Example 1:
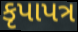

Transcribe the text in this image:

કૃપાપત્ર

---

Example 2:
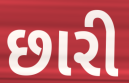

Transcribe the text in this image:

છારી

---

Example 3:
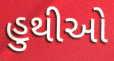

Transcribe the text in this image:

હુથીઓ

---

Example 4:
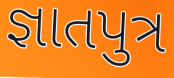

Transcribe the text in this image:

જ્ઞાતપુત્ર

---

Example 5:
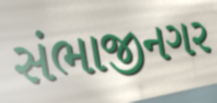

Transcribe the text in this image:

સંભાજીનગર